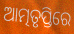
ଆତ୍ମତୃପ୍ତିରେ